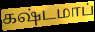
கஷ்டமாப்